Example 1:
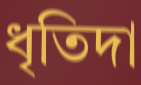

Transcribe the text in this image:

ধৃতিদা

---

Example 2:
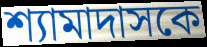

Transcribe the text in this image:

শ্যামাদাসকে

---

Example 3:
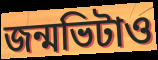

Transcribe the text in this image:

জন্মভিটাও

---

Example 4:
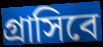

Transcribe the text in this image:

গ্রাসিবে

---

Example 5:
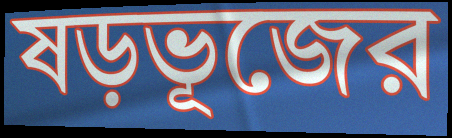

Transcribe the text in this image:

ষড়ভূজের